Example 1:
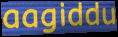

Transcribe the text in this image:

aagiddu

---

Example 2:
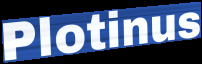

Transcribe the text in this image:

Plotinus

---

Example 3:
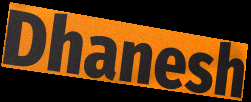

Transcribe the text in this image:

Dhanesh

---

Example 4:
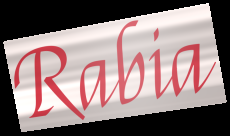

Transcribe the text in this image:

Rabia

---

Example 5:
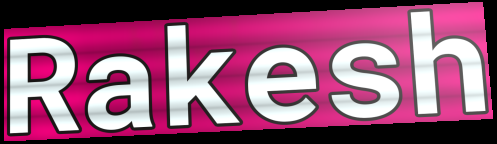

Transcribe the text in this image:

Rakesh